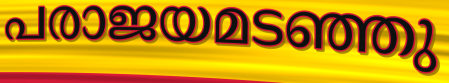
പരാജയമടഞ്ഞു